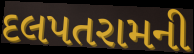
દલપતરામની